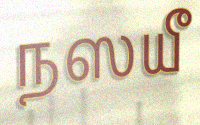
நஸயீ